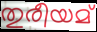
തുരീയമ്